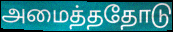
அமைத்ததோடு